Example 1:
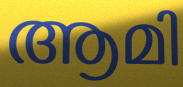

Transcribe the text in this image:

ആമി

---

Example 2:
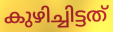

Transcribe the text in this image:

കുഴിച്ചിട്ടത്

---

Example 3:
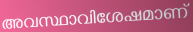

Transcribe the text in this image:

അവസ്ഥാവിശേഷമാണ്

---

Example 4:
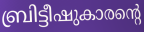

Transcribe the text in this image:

ബ്രിട്ടീഷുകാരന്റെ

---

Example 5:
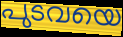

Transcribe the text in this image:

പുടവയെ